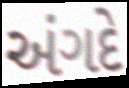
અંગદે